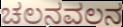
ಚಲನವಲನ